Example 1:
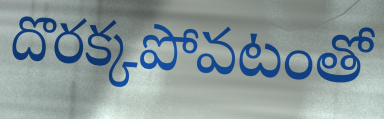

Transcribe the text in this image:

దొరక్కపోవటంతో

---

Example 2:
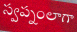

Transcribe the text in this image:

స్వప్నంలాగా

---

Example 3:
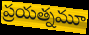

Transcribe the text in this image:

ప్రయత్నమూ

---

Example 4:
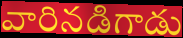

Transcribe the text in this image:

వారినడిగాడు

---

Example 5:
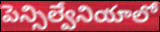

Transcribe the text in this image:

పెన్సిల్వేనియాలో